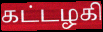
கட்டழகி